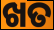
ଖତ